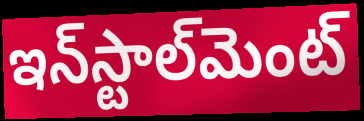
ఇన్‌స్టాల్‌మెంట్